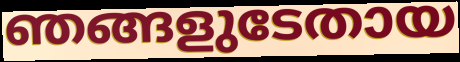
ഞങ്ങളുടേതായ